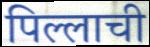
पिल्लाची